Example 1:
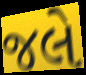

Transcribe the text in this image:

જલે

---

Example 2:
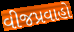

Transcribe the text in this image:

વીજપ્રવાહો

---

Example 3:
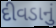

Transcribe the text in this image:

દીવડાનું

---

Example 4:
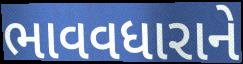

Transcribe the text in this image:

ભાવવધારાને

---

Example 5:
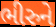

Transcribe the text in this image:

ભીરુને